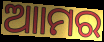
ଆାମର